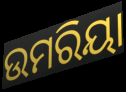
ଉମରିୟା